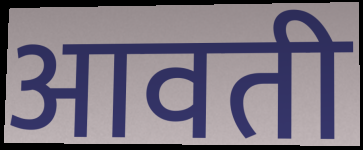
आवती